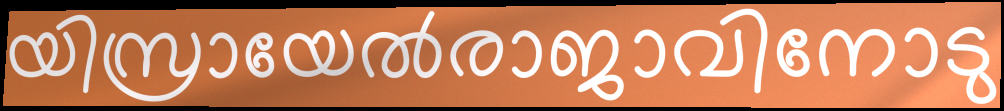
യിസ്രായേൽരാജാവിനോടു